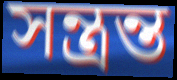
সন্ত্রন্ত